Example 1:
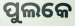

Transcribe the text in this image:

ପୁଲକେ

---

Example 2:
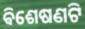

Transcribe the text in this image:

ଵିଶେଷଣଟି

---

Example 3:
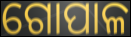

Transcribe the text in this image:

ଗୋପାଳ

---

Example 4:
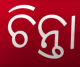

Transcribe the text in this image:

ଚିନ୍ତା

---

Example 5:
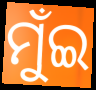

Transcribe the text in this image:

ମୁଁଇ